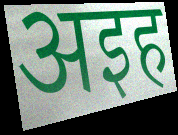
अइह